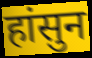
हांसुन